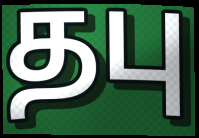
தபு